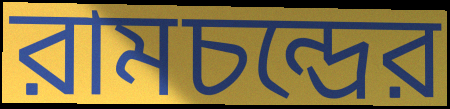
রামচন্দ্রের